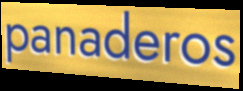
panaderos